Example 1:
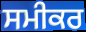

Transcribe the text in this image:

ਸਮੀਕਰ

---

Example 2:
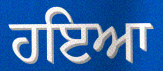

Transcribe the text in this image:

ਹਇਆ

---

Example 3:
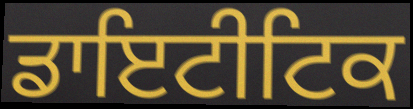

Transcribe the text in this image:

ਡਾਇਟੀਟਿਕ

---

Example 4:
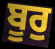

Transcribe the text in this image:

ਬੂਰੁ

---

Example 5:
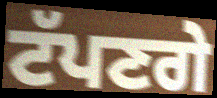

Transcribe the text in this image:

ਟੱਪਣਗੇ